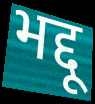
भद्दू